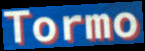
Tormo